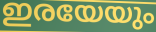
ഇരയേയും